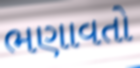
ભણાવતો